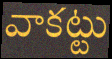
వాకట్టు